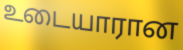
உடையாரான